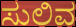
ಸುಲಿವ